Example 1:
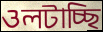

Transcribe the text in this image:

ওলটাচ্ছি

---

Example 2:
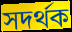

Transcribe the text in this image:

সদর্থক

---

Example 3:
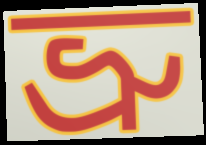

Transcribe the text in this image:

ভ্রু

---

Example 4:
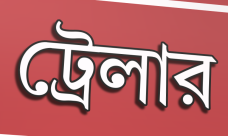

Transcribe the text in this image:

ট্রেলার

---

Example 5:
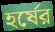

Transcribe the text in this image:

হর্ষের